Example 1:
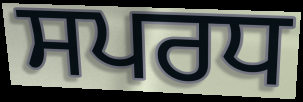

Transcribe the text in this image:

ਸਪਰਧ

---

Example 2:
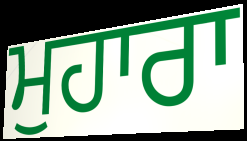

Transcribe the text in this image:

ਮੁਹਾਰਾ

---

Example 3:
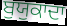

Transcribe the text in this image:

ਬੁਯੁਕਾਦਾ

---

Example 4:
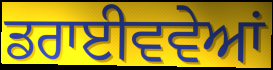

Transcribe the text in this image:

ਡਰਾਈਵਵੇਆਂ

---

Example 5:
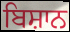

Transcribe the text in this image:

ਬਿਸ਼ਾਨ